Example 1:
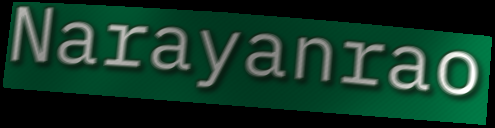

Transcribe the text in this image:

Narayanrao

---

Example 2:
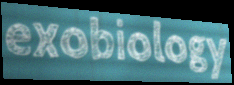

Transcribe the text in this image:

exobiology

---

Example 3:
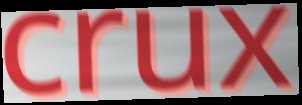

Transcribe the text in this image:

crux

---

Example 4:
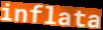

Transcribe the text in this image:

inflata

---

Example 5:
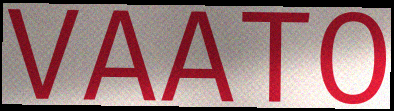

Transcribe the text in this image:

VAATO